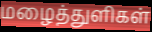
மழைத்துளிகள்